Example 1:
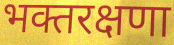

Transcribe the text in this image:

भक्तरक्षणा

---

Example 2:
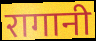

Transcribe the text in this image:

रागानी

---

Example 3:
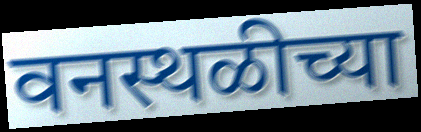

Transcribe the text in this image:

वनस्थळीच्या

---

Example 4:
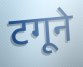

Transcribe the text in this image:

टगूने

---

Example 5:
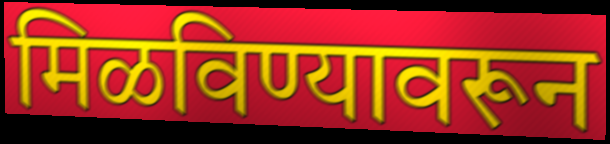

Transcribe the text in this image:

मिळविण्यावरून